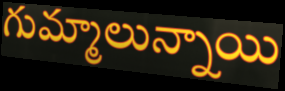
గుమ్మాలున్నాయి